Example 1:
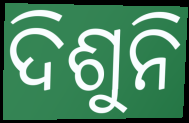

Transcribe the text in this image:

ଦିଶୁନି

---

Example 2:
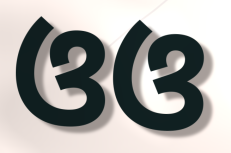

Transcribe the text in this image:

ଓଓ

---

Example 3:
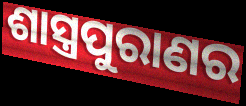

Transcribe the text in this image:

ଶାସ୍ତ୍ରପୁରାଣର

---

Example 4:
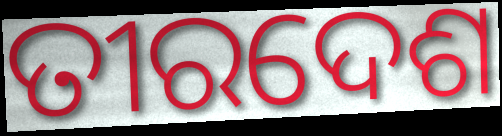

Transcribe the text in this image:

ତୀରଦେଶ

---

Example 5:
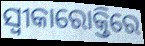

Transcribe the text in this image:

ସ୍ଵୀକାରୋକ୍ତିରେ